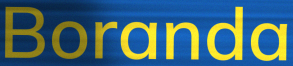
Boranda